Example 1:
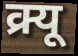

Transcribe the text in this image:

क्र्यू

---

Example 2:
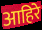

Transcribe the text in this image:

आहिरे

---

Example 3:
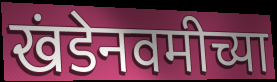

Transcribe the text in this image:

खंडेनवमीच्या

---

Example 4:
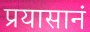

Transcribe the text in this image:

प्रयासानं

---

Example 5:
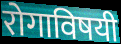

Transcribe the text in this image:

रोगाविषयी